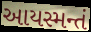
આયસ્મન્તં